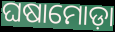
ଘଷାମୋଡ଼ା